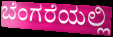
ಬೆಂಗರೆಯಲ್ಲಿ